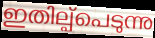
ഇതില്പ്പെടുന്നു